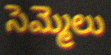
సెమ్మెలు